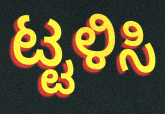
ಟ್ಟಳಿಸಿ